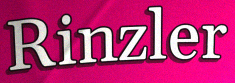
Rinzler